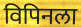
विपिनला